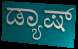
ಡ್ಯಾಷ್